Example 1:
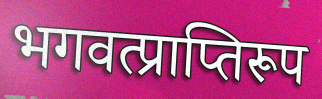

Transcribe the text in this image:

भगवत्प्राप्तिरूप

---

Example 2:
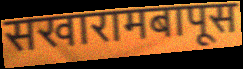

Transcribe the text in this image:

सखारामबापूस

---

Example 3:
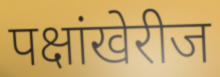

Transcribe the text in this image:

पक्षांखेरीज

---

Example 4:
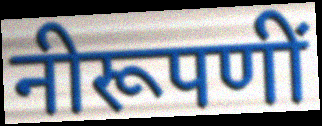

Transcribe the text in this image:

नीरूपणीं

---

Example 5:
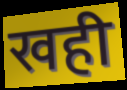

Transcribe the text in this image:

खही